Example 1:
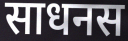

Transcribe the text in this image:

साधनस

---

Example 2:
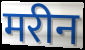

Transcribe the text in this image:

मरीन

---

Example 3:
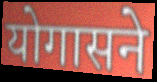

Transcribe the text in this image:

योगासने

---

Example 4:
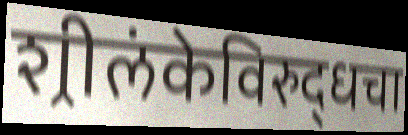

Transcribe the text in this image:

श्रीलंकेविरुद्धचा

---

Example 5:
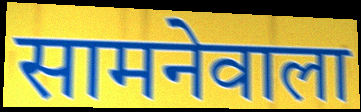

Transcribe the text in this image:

सामनेवाला